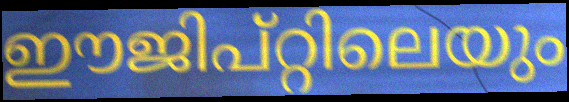
ഈജിപ്റ്റിലെയും